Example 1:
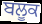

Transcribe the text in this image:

ਬਲੂਕ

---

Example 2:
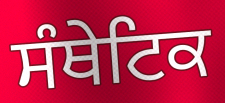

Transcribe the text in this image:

ਸੰਥੇਟਿਕ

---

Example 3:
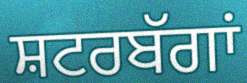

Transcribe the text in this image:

ਸ਼ਟਰਬੱਗਾਂ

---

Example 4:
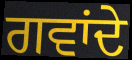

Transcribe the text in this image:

ਗਵਾਂਦੇ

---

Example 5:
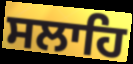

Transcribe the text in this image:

ਸਲਾਹਿ